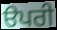
ੳਪਰੀ